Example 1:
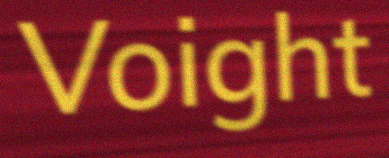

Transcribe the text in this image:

Voight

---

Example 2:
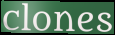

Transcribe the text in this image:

clones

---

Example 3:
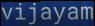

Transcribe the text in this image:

vijayam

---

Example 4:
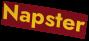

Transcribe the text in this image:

Napster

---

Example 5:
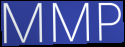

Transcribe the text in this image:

MMP